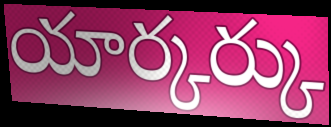
యార్కర్కు